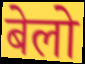
बेलो